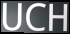
UCH